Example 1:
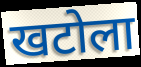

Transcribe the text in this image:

खटोला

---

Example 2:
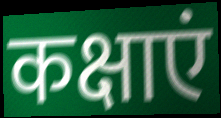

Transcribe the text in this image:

कक्षाएं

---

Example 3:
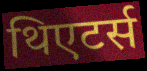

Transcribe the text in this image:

थिएटर्स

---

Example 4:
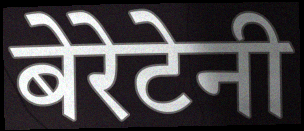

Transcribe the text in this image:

बेरेटेनी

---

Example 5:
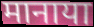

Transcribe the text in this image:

मानाया